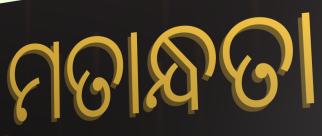
ମତାନ୍ଧତା